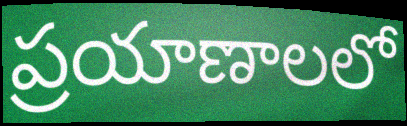
ప్రయాణాలలో